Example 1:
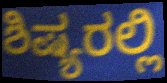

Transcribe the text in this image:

ಶಿಷ್ಯರಲ್ಲಿ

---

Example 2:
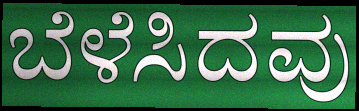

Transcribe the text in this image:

ಬೆಳೆಸಿದವು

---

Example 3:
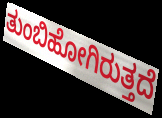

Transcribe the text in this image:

ತುಂಬಿಹೋಗಿರುತ್ತದೆ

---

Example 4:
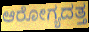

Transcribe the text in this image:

ಆರೋಗ್ಯದತ್ತ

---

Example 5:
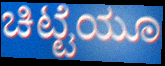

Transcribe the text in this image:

ಚಿಟ್ಟೆಯೂ